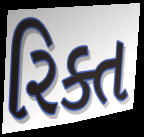
રિક્ત